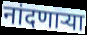
नांदणाऱ्या